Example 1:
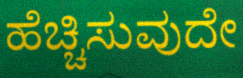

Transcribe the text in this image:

ಹೆಚ್ಚಿಸುವುದೇ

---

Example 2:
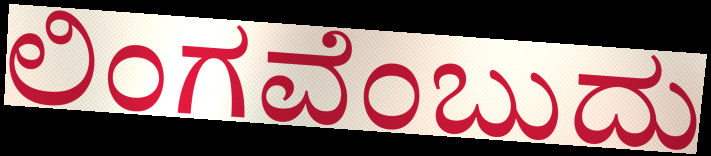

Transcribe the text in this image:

ಲಿಂಗವೆಂಬುದು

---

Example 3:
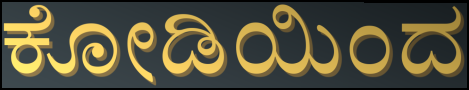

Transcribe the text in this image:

ಕೋಡಿಯಿಂದ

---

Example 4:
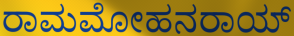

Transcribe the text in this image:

ರಾಮಮೋಹನರಾಯ್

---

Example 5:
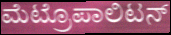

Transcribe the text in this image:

ಮೆಟ್ರೊಪಾಲಿಟನ್